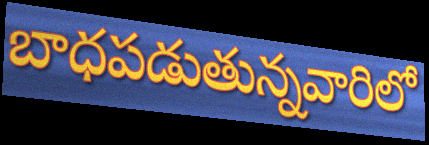
బాధపడుతున్నవారిలో